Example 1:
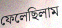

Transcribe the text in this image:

ফেলেছিলাম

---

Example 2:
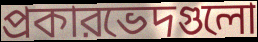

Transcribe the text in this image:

প্রকারভেদগুলো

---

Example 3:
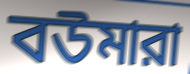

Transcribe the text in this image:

বউমারা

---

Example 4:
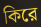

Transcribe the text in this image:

কিরে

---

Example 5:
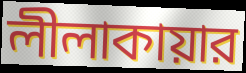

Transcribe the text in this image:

লীলাকায়ার